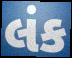
લંક